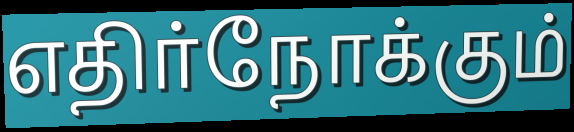
எதிர்நோக்கும்